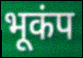
भूकंप